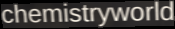
chemistryworld